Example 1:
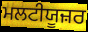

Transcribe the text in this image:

ਮਲਟੀਯੂਜ਼ਰ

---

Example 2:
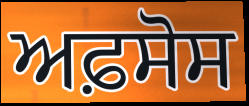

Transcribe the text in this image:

ਅਫ਼ਸੋਸ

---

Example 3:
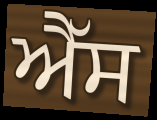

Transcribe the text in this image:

ਐੱਸ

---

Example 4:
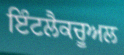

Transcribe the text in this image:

ਇੰਟਲੈਕਚੂਅਲ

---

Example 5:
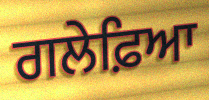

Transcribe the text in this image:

ਗਲੇਫ਼ਿਆ